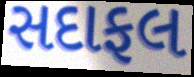
સદાફલ